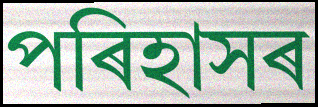
পৰিহাসৰ